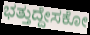
ಭತ್ತುದ್ದೇಸಕೋ